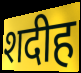
शदीह